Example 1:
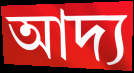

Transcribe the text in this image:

আদ্য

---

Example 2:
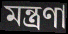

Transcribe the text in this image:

মন্ত্রণা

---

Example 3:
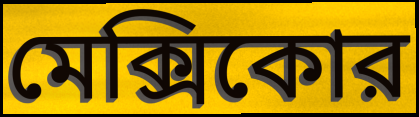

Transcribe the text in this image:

মেক্সিকোর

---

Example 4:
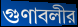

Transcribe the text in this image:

গুণাবলীর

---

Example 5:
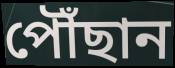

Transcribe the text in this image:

পৌঁছান